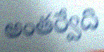
అంతర్వేది